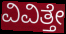
ವಿವಿತ್ತೇ